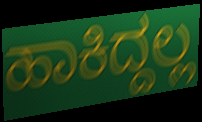
ಹಾಕಿದ್ದಲ್ಲ